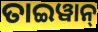
ତାଇୱାନ୍